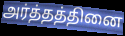
அர்த்தத்தினை